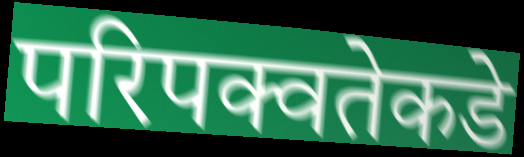
परिपक्वतेकडे